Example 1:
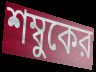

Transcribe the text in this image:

শম্বুকের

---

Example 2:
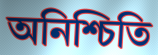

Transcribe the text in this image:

অনিশ্চিতি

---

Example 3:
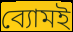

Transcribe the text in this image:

ব্যোমই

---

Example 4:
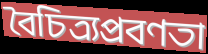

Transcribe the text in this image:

বৈচিত্র্যপ্রবণতা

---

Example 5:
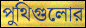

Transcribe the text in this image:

পুথিগুলোর